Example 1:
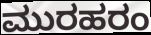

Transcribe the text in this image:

ಮುರಹರಂ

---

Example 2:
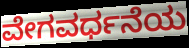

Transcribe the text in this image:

ವೇಗವರ್ಧನೆಯ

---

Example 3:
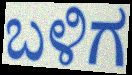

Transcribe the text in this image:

ಬಳಿಗ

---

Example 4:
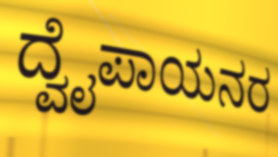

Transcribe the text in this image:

ದ್ವೈಪಾಯನರ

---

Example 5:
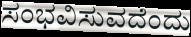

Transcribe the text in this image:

ಸಂಭವಿಸುವದೆಂದು